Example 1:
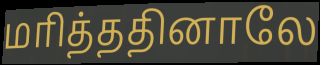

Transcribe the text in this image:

மரித்ததினாலே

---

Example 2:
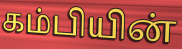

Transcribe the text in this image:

கம்பியின்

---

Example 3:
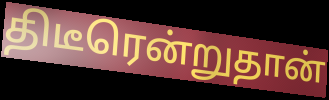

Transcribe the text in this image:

திடீரென்றுதான்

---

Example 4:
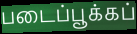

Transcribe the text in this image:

படைப்பூக்கப்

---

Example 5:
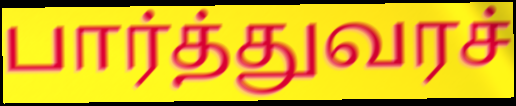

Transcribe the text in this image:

பார்த்துவரச்